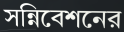
সন্নিবেশনের